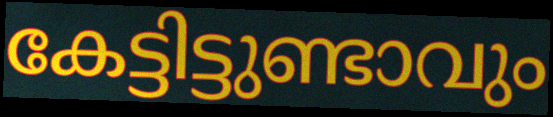
കേട്ടിട്ടുണ്ടാവും